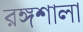
রঙ্গশালা